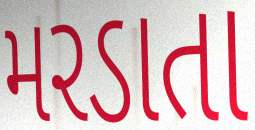
મરડાતા